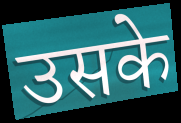
उसके